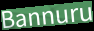
Bannuru